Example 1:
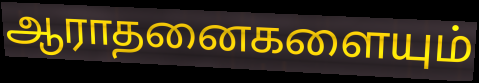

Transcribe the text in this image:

ஆராதனைகளையும்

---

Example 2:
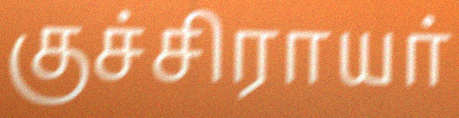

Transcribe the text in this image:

குச்சிராயர்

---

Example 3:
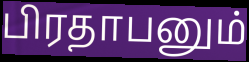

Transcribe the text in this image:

பிரதாபனும்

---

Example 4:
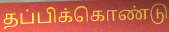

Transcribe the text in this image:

தப்பிக்கொண்டு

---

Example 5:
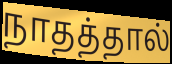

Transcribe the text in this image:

நாதத்தால்